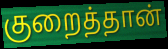
குறைத்தான்